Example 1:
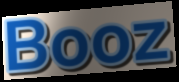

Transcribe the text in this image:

Booz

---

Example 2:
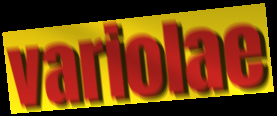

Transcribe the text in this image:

variolae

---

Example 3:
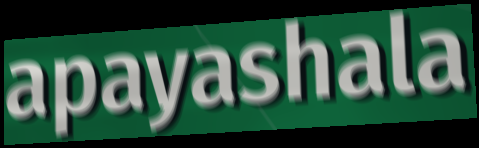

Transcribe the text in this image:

apayashala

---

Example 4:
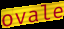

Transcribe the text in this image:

ovale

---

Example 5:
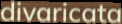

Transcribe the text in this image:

divaricata